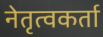
नेतृत्वकर्ता